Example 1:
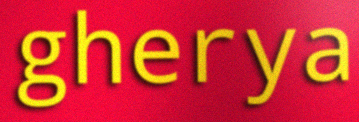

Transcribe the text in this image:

gherya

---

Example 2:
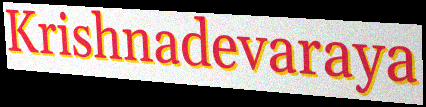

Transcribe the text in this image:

Krishnadevaraya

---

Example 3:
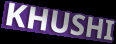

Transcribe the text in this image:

KHUSHI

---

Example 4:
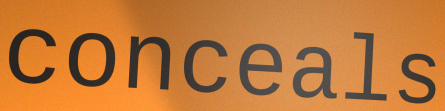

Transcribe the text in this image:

conceals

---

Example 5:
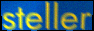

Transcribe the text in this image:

steller